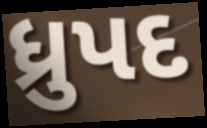
ધ્રુપદ